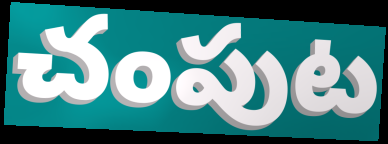
చంపుట